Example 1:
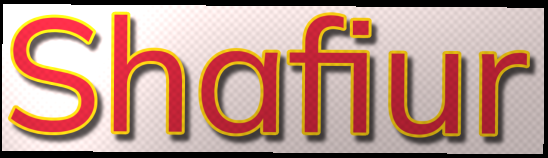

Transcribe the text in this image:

Shafiur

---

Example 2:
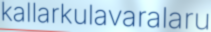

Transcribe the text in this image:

kallarkulavaralaru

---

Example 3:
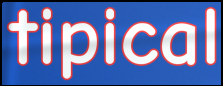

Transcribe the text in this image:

tipical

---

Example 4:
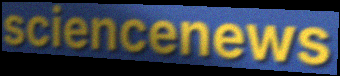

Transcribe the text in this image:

sciencenews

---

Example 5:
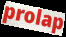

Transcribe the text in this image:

prolap